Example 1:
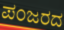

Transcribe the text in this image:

ಪಂಜರದ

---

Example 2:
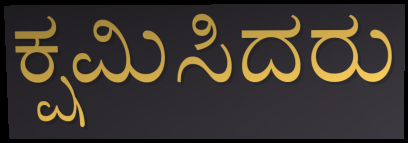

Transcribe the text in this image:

ಕ್ಷಮಿಸಿದರು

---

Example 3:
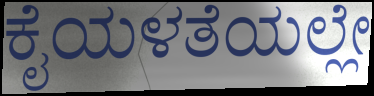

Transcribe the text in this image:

ಕೈಯಳತೆಯಲ್ಲೇ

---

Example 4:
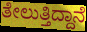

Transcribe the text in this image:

ತೇಲುತ್ತಿದ್ದಾನೆ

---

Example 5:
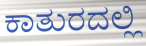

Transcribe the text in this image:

ಕಾತುರದಲ್ಲಿ